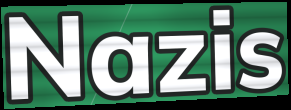
Nazis